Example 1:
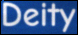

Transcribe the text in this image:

Deity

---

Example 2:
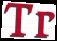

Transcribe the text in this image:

Tr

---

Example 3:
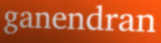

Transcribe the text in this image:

ganendran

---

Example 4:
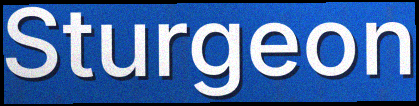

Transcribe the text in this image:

Sturgeon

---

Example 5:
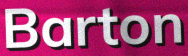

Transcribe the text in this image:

Barton